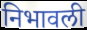
निभावली